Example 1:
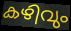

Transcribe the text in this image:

കഴിവും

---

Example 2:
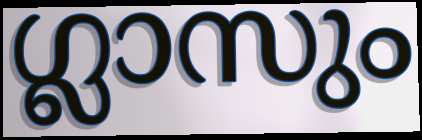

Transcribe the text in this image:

ഗ്ലാസും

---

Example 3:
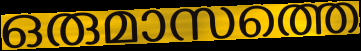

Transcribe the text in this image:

ഒരുമാസത്തെ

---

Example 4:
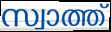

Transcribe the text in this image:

സ്വാത്ത്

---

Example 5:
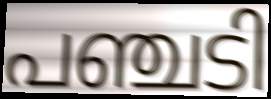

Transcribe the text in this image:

പഞ്ചടി